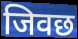
जिवछ